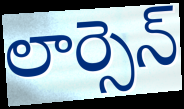
లార్సెన్